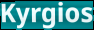
Kyrgios